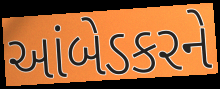
આંબેડકરને